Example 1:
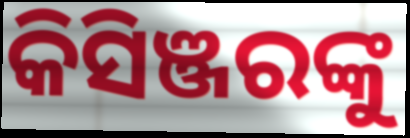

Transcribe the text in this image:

କିସିଞ୍ଜରଙ୍କୁ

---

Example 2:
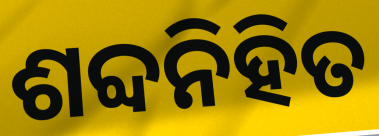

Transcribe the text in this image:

ଶବ୍ଦନିହିତ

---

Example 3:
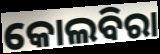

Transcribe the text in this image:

କୋଲବିରା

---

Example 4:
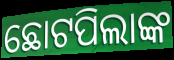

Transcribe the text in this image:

ଛୋଟପିଲାଙ୍କ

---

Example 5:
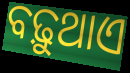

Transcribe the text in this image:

ବଢ଼ୁଥାଏ